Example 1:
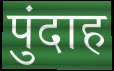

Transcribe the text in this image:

पुंदाह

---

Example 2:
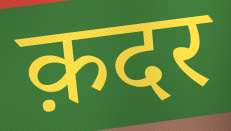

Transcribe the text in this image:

क़दर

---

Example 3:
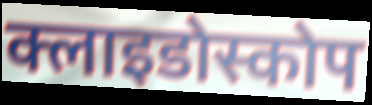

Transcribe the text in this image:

क्लाइडोस्कोप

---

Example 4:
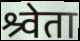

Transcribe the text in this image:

श्र्वेता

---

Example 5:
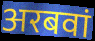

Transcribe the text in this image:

अरबवां